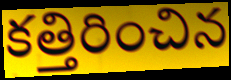
కత్తిరించిన